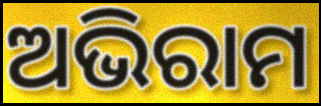
ଅଭିରାମ